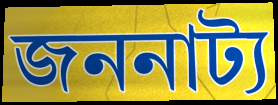
জননাট্য